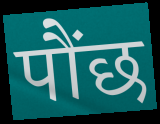
पौंछ